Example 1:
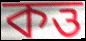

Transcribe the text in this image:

কত্ত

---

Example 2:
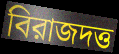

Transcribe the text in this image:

বিরাজদত্ত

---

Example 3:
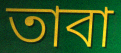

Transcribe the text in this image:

তাবা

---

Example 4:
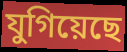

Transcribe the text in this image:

যুগিয়েছে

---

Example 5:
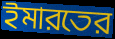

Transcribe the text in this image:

ইমারতের